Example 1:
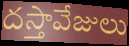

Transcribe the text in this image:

దస్తావేజులు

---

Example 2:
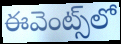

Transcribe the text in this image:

ఈవెంట్స్‌లో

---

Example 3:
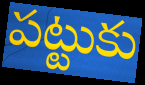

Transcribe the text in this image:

పట్టుకు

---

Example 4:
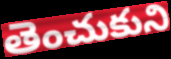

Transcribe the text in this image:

తెంచుకుని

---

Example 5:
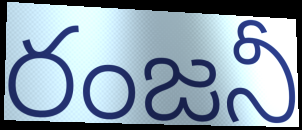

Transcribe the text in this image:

రంజనీ